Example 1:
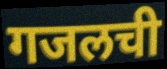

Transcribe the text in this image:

गजलची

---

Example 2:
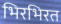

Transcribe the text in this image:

भिरभिरत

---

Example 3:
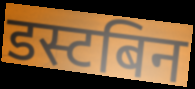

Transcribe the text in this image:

डस्टबिन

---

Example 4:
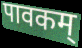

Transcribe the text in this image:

पावकम्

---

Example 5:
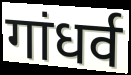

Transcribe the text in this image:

गांधर्व